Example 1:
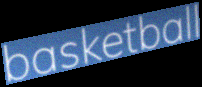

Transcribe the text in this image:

basketball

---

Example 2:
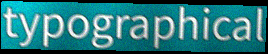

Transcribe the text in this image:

typographical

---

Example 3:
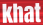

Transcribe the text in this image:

khat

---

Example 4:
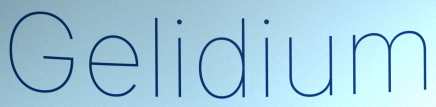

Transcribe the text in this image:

Gelidium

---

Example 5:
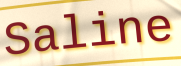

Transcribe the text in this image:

Saline